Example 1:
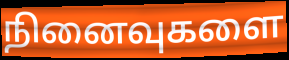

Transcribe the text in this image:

நினைவுகளை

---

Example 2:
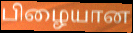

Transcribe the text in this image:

பிழையான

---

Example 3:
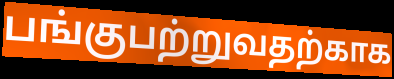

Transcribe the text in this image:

பங்குபற்றுவதற்காக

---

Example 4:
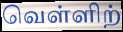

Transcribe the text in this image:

வெள்ளிற்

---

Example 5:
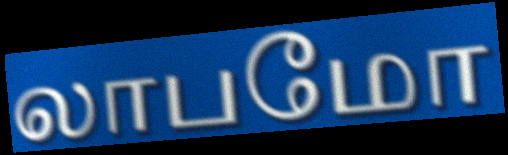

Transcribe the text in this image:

லாபமோ